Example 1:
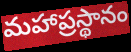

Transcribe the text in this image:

మహాప్రస్థానం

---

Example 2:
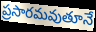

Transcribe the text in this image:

ప్రసారమవుతూనే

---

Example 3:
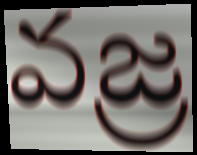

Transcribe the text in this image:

వజ్ర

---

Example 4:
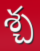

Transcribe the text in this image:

శ్చ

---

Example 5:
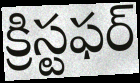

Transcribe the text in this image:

క్రిస్టఫర్